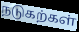
நடுகற்கள்